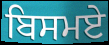
ਬਿਸਮਏ